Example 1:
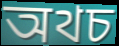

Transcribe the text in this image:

অথচ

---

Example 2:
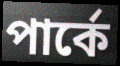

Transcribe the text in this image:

পার্কে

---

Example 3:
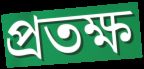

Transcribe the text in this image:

প্রতক্ষ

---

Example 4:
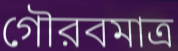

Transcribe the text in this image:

গৌরবমাত্র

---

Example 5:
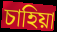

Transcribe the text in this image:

চাহিয়া